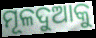
ମୂଳଦୁଆକୁ